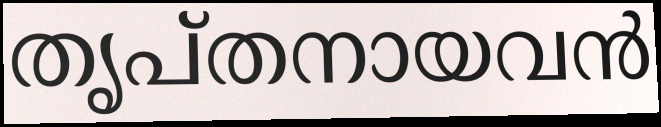
തൃപ്തനായവൻ